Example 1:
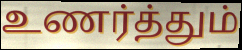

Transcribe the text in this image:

உணர்த்தும்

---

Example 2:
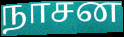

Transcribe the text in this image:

நாசன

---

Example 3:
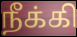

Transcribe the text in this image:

நீக்கி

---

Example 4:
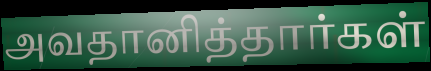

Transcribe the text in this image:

அவதானித்தார்கள்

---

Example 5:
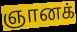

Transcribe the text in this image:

ஞானக்